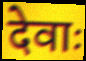
देवाः